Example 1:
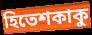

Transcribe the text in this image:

হিতেশকাকু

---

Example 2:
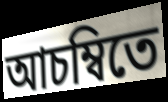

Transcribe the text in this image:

আচম্বিতে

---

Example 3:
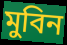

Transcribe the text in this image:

মুবিন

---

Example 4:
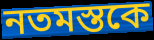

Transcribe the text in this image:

নতমস্তকে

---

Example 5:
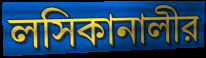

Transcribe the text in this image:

লসিকানালীর